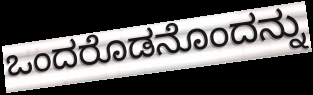
ಒಂದರೊಡನೊಂದನ್ನು